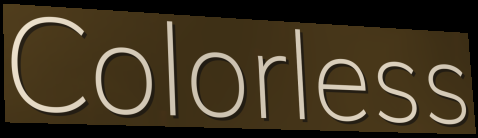
Colorless